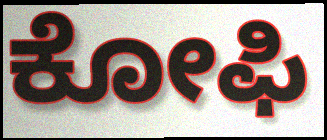
ಕೋಫಿ